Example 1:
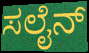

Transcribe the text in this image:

ಸಲೈನ್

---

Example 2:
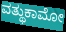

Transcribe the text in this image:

ವತ್ಥುಕಾಮೋ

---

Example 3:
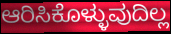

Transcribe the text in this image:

ಆರಿಸಿಕೊಳ್ಳುವುದಿಲ್ಲ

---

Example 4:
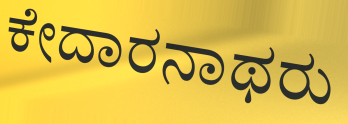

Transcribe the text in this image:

ಕೇದಾರನಾಥರು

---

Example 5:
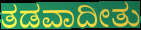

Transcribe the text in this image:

ತಡವಾದೀತು